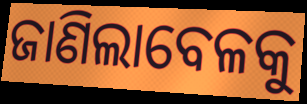
ଜାଣିଲାବେଳକୁ